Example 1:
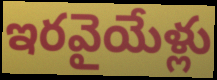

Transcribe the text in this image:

ఇరవైయేళ్లు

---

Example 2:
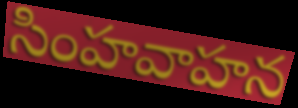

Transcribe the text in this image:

సింహవాహన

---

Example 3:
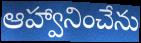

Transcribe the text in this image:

ఆహ్వానించేను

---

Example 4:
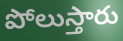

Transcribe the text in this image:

పోలుస్తారు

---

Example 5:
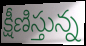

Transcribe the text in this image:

క్షీణిస్తున్న